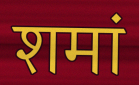
शमां